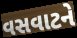
વસવાટને